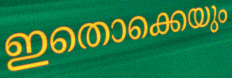
ഇതൊക്കെയും